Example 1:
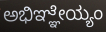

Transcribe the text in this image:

ಅಭಿಞ್ಞೇಯ್ಯಂ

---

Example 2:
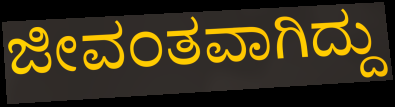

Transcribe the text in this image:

ಜೀವಂತವಾಗಿದ್ದು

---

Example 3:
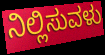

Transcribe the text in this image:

ನಿಲ್ಲಿಸುವಳು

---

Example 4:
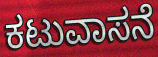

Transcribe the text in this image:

ಕಟುವಾಸನೆ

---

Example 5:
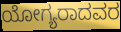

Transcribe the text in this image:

ಯೋಗ್ಯರಾದವರ